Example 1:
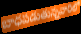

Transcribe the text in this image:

బాధపడుతున్నవారిలో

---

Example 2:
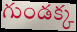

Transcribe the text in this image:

గుండక్క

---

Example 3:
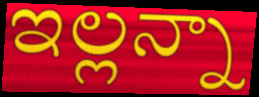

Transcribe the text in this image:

ఇల్లన్నా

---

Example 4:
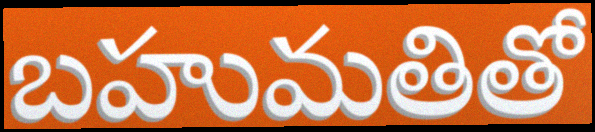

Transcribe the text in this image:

బహుమతితో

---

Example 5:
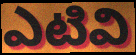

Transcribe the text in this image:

ఎటివి